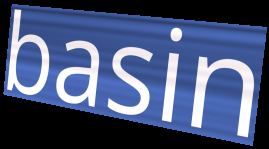
basin